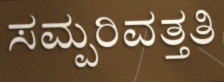
ಸಮ್ಪರಿವತ್ತತಿ